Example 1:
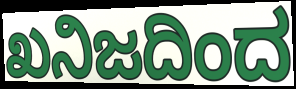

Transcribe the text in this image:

ಖನಿಜದಿಂದ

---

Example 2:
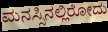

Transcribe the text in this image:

ಮನಸ್ಸಿನಲ್ಲಿರೋದು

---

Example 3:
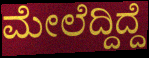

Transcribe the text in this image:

ಮೇಲೆದ್ದಿದ್ದೆ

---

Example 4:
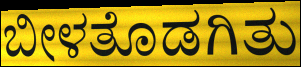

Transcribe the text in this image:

ಬೀಳತೊಡಗಿತು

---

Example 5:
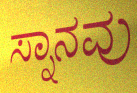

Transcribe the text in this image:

ಸ್ನಾನವು